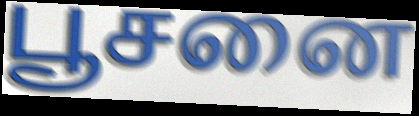
பூசனை